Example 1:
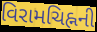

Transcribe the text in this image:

વિરામચિહ્નની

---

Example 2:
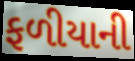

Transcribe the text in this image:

ફળીયાની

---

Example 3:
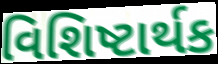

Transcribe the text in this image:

વિશિષ્ટાર્થક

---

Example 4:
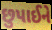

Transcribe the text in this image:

છુપાઈને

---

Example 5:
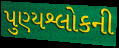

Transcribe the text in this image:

પુણ્યશ્લોકની